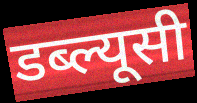
डब्ल्यूसी